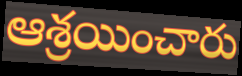
ఆశ్రయించారు